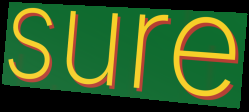
sure